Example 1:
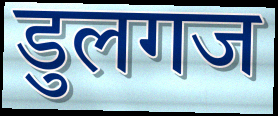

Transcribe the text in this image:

डुलगज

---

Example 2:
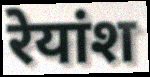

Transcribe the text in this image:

रेयांश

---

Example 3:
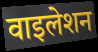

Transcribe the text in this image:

वाइलेशन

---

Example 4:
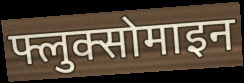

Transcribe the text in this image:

फ्लुक्सोमाइन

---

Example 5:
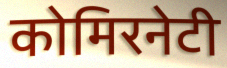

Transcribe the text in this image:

कोमिरनेटी